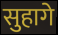
सुहागे